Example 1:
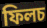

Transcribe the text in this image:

ফিলচ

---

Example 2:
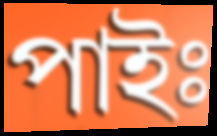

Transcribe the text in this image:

পাইঃ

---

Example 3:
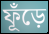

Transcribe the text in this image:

ফূঁড়ে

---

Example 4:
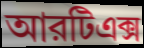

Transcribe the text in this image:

আরটিএক্স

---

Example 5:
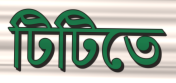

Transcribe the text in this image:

টিটিতে